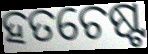
ହତଚେଷ୍ଟ